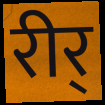
रीर्